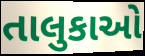
તાલુકાઓ